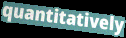
quantitatively